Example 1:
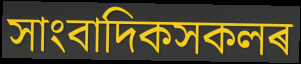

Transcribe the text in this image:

সাংবাদিকসকলৰ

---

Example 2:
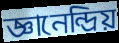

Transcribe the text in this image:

জ্ঞানেন্দ্ৰিয়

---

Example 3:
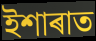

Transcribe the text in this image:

ইশাৰাত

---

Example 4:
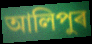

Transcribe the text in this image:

আলিপুৰ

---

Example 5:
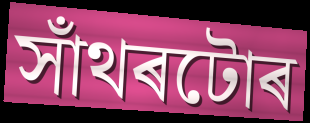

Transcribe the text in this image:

সাঁথৰটোৰ